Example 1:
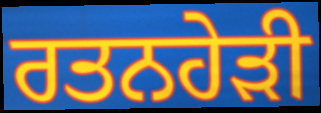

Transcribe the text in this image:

ਰਤਨਹੇੜੀ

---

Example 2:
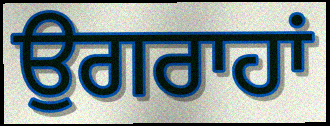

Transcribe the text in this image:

ਉਗਰਾਹਾਂ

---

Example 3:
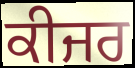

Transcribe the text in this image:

ਕੀਜਰ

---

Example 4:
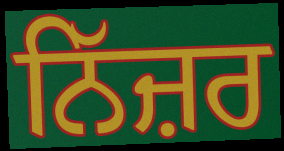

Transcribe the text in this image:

ਨਿੱਜ਼ਰ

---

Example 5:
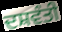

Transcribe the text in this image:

ਦਸ਼ਵੰਤੀ